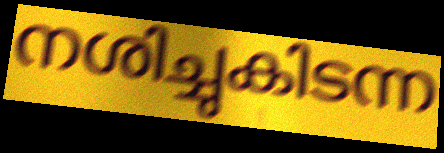
നശിച്ചുകിടന്ന